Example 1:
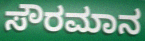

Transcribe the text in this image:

ಸೌರಮಾನ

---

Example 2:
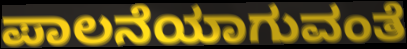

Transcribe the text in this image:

ಪಾಲನೆಯಾಗುವಂತೆ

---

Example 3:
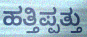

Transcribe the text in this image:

ಹತ್ತಿಪ್ಪತ್ತು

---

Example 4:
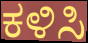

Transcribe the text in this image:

ಕಳಿಸಿ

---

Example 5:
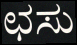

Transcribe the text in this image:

ಛಸು